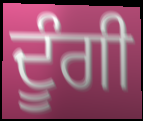
ਦੂੰਗੀ